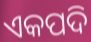
ଏକପଦି